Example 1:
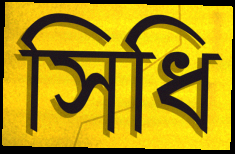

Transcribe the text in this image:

সিধি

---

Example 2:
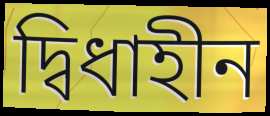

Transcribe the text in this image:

দ্বিধাহীন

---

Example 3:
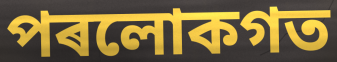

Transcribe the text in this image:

পৰলোকগত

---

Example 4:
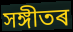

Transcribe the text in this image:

সঙ্গীতৰ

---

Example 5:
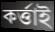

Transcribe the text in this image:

কৰ্ত্তাই